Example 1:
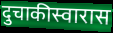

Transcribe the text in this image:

दुचाकीस्वारास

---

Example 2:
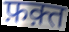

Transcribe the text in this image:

फ़क़्त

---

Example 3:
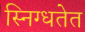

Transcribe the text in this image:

स्निग्धतेत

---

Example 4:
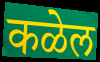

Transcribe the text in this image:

कळेल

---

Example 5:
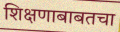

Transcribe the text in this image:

शिक्षणाबाबतचा